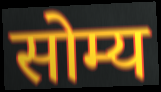
सोम्य